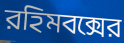
রহিমবক্সের